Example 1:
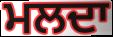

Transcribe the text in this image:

ਮਲਦਾ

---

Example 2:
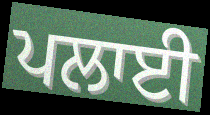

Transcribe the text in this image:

ਪਲਾਈ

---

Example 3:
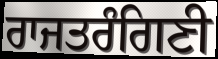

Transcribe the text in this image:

ਰਾਜਤਰੰਗਿਣੀ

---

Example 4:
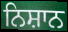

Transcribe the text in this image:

ਨਿਸ਼ਾਨ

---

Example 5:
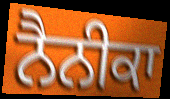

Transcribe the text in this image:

ਨੈਨੀਕਾ